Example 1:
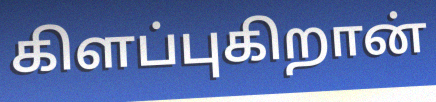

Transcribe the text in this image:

கிளப்புகிறான்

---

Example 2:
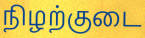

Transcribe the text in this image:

நிழற்குடை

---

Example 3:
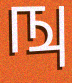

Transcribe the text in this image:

ஙு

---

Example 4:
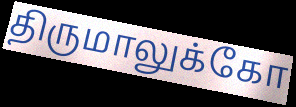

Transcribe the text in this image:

திருமாலுக்கோ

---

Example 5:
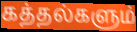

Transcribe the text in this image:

கத்தல்களும்